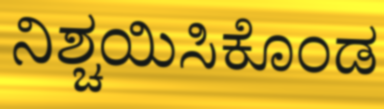
ನಿಶ್ಚಯಿಸಿಕೊಂಡ